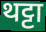
थट्टा